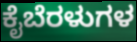
ಕೈಬೆರಳುಗಳ